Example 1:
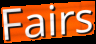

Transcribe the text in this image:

Fairs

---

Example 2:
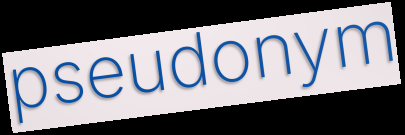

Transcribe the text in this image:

pseudonym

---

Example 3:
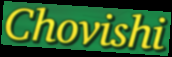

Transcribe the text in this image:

Chovishi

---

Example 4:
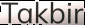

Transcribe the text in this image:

Takbir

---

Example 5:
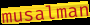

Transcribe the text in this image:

musalman